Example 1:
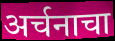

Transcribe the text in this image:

अर्चनाचा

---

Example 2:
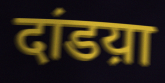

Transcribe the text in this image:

दांडय़ा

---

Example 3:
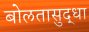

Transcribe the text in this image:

बोलतासुद्धा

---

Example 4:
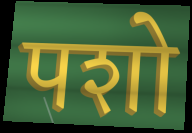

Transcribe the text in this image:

पशो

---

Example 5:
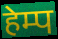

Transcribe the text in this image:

हेम्प